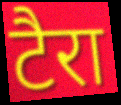
टैरा